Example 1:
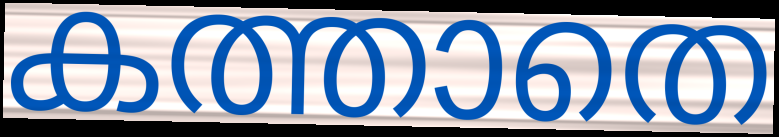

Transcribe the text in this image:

കത്താതെ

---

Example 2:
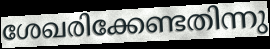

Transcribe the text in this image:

ശേഖരിക്കേണ്ടതിന്നു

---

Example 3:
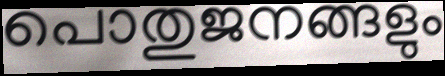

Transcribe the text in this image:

പൊതുജനങ്ങളും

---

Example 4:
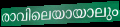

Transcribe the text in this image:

രാവിലെയായാലും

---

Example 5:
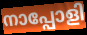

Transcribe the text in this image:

നാപ്പോളി